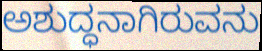
ಅಶುದ್ಧನಾಗಿರುವನು